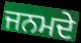
ਜਨਮਦੇ